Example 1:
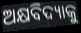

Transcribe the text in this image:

ଅକ୍ଷବିଦ୍ୟାକୁ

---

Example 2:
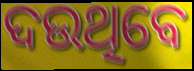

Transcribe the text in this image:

ଦଉଥିବେ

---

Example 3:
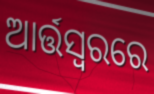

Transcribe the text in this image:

ଆର୍ତ୍ତସ୍ଵରରେ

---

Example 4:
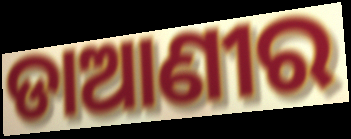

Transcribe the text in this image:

ଡାଆଣୀର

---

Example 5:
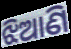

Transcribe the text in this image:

ଝିଆଣି